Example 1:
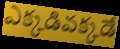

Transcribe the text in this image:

ఎక్కడివక్కడే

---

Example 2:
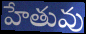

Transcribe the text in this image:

హేతువు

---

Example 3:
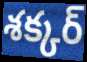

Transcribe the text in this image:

శక్కర్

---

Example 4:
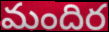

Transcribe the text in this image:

మందిర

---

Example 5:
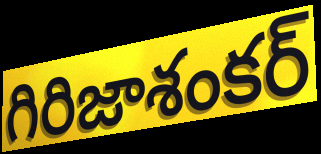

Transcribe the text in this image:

గిరిజాశంకర్